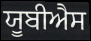
ਯੂਬੀਐਸ